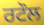
ਰਟੌਲ